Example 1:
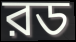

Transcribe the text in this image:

রড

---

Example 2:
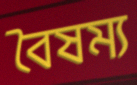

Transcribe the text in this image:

বৈষম্য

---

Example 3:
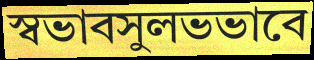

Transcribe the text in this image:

স্বভাবসুলভভাবে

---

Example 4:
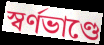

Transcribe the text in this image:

স্বর্ণভাণ্ডে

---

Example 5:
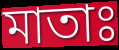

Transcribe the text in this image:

মাতাঃ